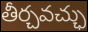
తీర్చవచ్ఛు